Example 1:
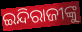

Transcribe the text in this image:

ଇନ୍ଦିରାଜୀଙ୍କୁ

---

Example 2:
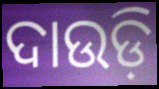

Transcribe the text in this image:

ଦାଉଡ଼ି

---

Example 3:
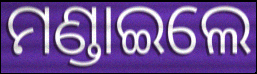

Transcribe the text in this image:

ମଣ୍ଡାଇଲେ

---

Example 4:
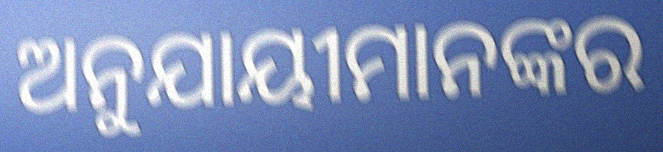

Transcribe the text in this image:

ଅନୁଯାୟୀମାନଙ୍କର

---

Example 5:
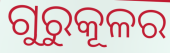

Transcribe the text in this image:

ଗୁରୁକୂଳର